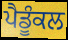
ਪੈਡੂੰਕਲ